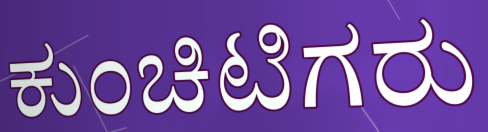
ಕುಂಚಿಟಿಗರು